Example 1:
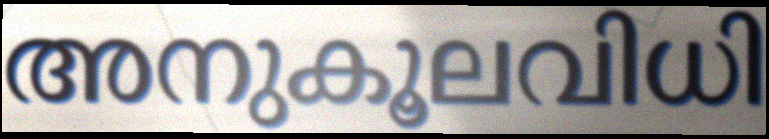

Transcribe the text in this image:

അനുകൂലവിധി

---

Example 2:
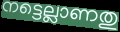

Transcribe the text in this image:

നട്ടെല്ലാണതു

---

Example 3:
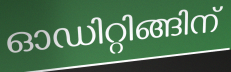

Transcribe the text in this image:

ഓഡിറ്റിങ്ങിന്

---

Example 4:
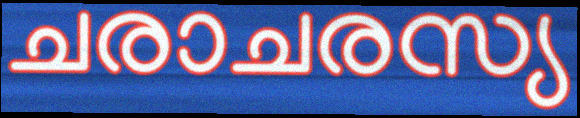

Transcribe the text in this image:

ചരാചരസ്യ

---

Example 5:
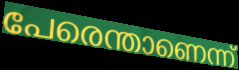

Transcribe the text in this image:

പേരെന്താണെന്ന്